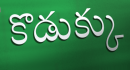
కొడుక్కు